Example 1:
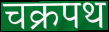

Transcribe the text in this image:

चक्रपथ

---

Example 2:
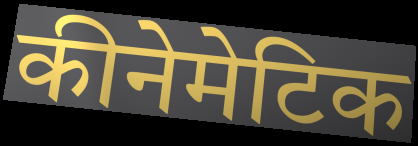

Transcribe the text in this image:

कीनेमेटिक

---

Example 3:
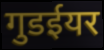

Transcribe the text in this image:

गुडईयर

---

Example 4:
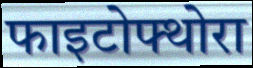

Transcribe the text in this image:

फाइटोफ्थोरा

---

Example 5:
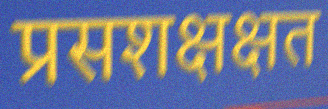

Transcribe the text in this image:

प्रसशक्षक्षत